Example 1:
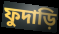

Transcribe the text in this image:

ফুদাড়ি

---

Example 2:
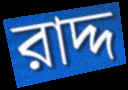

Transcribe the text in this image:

রাদ্দ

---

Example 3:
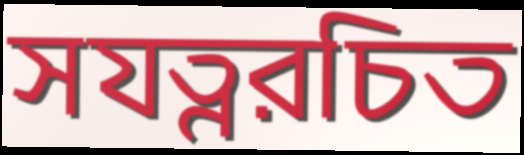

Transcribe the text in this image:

সযত্নরচিত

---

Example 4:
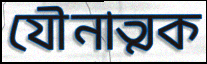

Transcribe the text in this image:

যৌনাত্মক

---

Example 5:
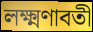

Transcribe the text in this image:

লক্ষ্মণাবতী